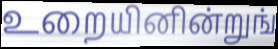
உறையினின்றுங்